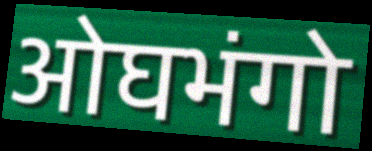
ओघभंगो